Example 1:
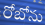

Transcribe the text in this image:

రోబోను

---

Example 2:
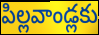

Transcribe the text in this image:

పిల్లవాండ్లకు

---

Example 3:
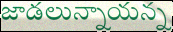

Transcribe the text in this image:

జాడలున్నాయన్న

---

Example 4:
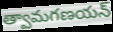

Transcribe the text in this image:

త్వామగణయన్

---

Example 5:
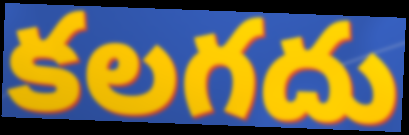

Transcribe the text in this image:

కలగదు